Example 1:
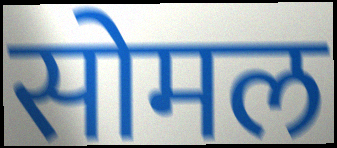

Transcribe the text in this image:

सोमल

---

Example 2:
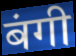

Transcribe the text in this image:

बंगी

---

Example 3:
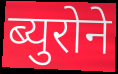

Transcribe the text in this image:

ब्युरोने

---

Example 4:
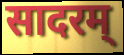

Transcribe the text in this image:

सादरम्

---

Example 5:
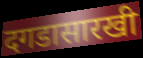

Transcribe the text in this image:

दगडासारखी